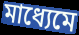
মাধ্যেমে